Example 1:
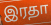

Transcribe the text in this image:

இரதா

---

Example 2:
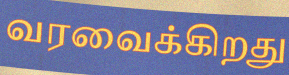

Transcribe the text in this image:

வரவைக்கிறது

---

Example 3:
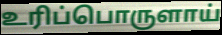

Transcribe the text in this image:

உரிப்பொருளாய்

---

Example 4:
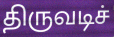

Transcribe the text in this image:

திருவடிச்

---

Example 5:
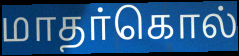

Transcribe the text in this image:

மாதர்கொல்